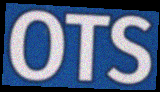
OTS